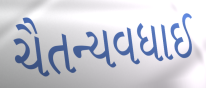
ચૈતન્યવધાઈ